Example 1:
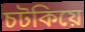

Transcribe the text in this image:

চটকিয়ে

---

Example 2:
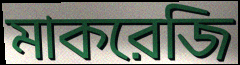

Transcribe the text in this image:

মাকরেজি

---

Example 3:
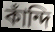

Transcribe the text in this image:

কাঁন্দি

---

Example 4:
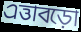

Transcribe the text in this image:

এত্তাবড়ো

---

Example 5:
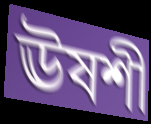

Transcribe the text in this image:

ঊষশী